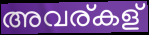
അവര്കള്